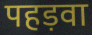
पहड़वा